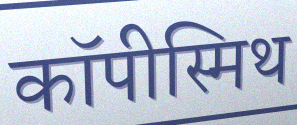
कॉपीस्मिथ